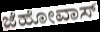
ಜೆಹೋವಾಸ್